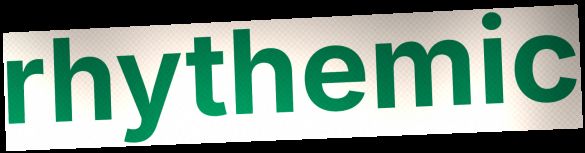
rhythemic